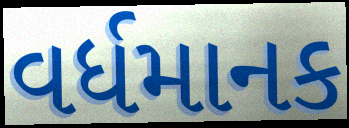
વર્ધમાનક